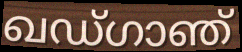
ഖഡ്ഗാഞ്